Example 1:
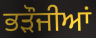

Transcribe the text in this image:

ਭੜੌਜੀਆਂ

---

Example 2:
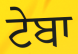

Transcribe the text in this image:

ਟੇਬਾ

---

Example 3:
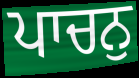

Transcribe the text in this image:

ਪਾਚਨੁ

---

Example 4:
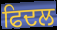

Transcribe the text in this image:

ਫਿਦਲ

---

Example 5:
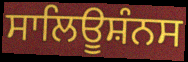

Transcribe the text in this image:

ਸਾਲਿਊਸ਼ੰਨਸ